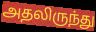
அதலிருந்து